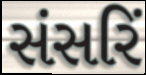
સંસરિં